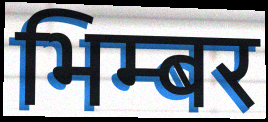
भिम्बर